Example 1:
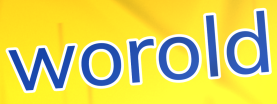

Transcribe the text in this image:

worold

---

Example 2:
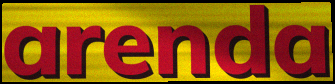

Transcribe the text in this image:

arenda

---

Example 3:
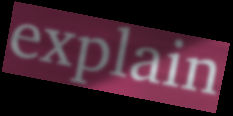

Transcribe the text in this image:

explain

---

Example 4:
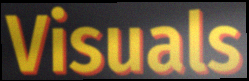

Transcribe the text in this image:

Visuals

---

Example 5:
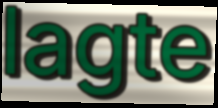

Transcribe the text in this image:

lagte